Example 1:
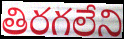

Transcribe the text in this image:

తిరగలేని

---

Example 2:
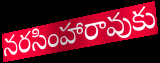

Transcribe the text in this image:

నరసింహారావుకు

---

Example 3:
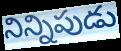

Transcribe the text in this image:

నిన్నిపుడు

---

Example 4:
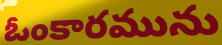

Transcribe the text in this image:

ఓంకారమును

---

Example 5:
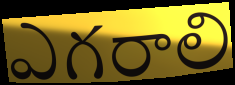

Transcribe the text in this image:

ఎగరాలి